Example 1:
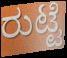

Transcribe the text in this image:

ರುಟ್ಟೆ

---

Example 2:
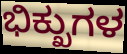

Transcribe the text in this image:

ಭಿಕ್ಖುಗಳ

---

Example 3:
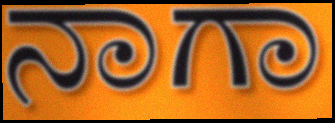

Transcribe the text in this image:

ನಾಗಾ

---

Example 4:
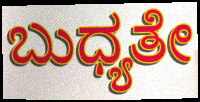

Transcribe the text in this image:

ಬುಧ್ಯತೇ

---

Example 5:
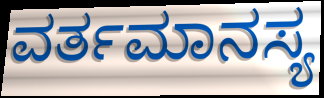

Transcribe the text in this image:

ವರ್ತಮಾನಸ್ಯ